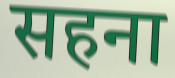
सहना